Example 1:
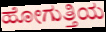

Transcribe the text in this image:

ಹೋಗುತ್ತಿಯ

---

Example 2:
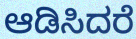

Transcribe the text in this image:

ಆಡಿಸಿದರೆ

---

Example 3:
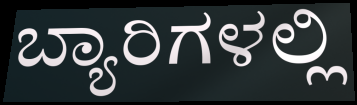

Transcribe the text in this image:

ಬ್ಯಾರಿಗಳಲ್ಲಿ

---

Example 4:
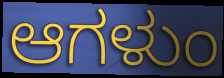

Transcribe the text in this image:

ಆಗಳುಂ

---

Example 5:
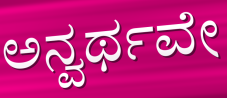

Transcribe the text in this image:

ಅನ್ವರ್ಥವೇ